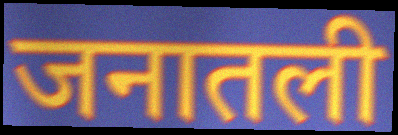
जनातली